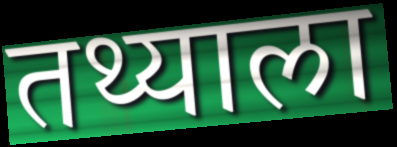
तथ्याला